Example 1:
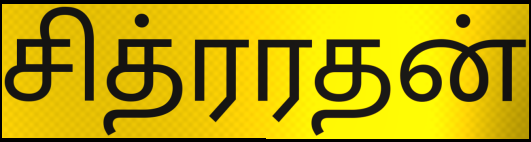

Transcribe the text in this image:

சித்ரரதன்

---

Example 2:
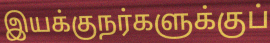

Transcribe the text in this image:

இயக்குநர்களுக்குப்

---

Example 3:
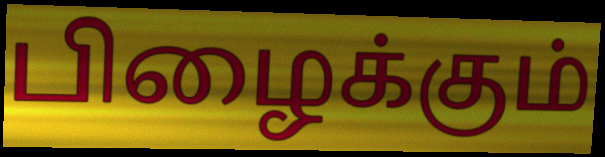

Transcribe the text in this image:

பிழைக்கும்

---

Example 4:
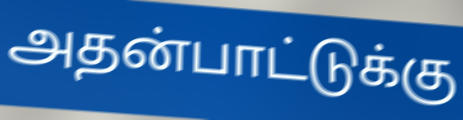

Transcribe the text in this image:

அதன்பாட்டுக்கு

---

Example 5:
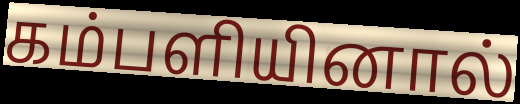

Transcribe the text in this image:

கம்பளியினால்